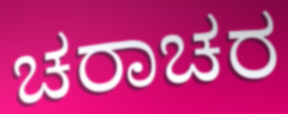
ಚರಾಚರ